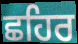
ਛਹਿਰ